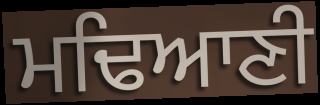
ਮਢਿਆਣੀ